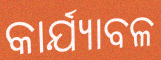
କାର୍ଯ୍ୟାବଳ